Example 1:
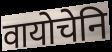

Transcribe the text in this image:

वायोचेनि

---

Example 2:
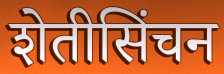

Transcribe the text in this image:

शेतीसिंचन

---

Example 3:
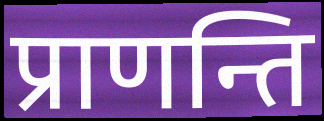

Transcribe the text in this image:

प्राणन्ति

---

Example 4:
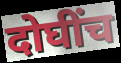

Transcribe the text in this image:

दोघींच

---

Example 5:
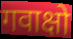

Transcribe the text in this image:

गवाक्षो